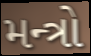
મન્ત્રો